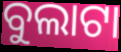
ବୁଲାଟା